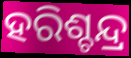
ହରିଶ୍ଚନ୍ଦ୍ର